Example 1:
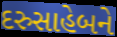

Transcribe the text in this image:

દરુસાહેબને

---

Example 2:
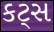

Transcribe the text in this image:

કટ્સ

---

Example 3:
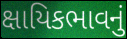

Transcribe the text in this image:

ક્ષાયિકભાવનું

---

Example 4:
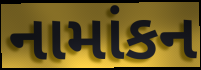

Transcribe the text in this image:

નામાંકન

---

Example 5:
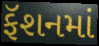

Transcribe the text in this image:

ફૅશનમાં